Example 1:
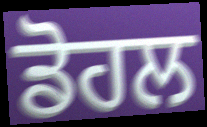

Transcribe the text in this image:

ਡੋਹਲ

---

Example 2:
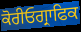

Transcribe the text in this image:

ਕੋਰੀਓਗ੍ਰਾਫਿਕ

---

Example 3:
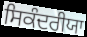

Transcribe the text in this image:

ਸਿਕੰਦਰੀਯਾ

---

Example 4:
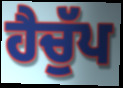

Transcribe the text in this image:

ਹੈਚੁੱਪ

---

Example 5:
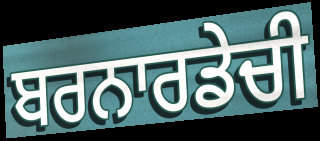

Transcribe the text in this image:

ਬਰਨਾਰਡੇਚੀ